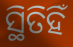
ସ୍ଥିତିହିଁ